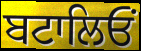
ਬਟਾਲਿਓਂ